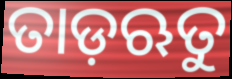
ତାଡ଼ଋତୁ